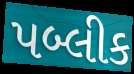
પબ્લીક